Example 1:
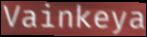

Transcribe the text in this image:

Vainkeya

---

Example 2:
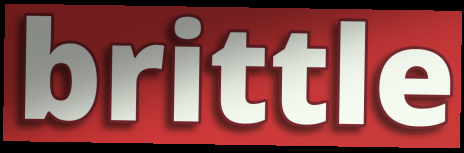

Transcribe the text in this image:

brittle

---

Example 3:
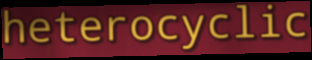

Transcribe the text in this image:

heterocyclic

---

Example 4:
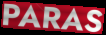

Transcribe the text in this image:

PARAS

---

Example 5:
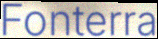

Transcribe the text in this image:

Fonterra